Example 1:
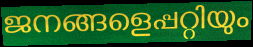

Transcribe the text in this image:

ജനങ്ങളെപ്പറ്റിയും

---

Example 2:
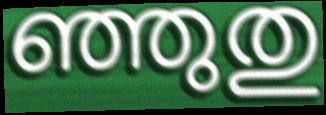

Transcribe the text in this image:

ഞ്ഞുതു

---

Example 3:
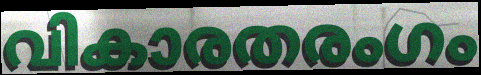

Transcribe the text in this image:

വികാരതരംഗം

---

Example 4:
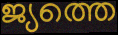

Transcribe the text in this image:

ജ്യത്തെ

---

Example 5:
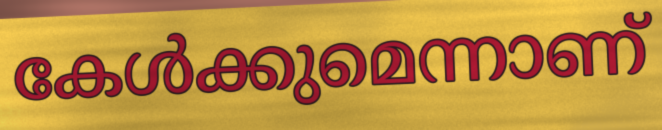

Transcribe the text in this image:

കേൾക്കുമെന്നാണ്